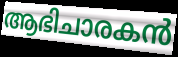
ആഭിചാരകൻ